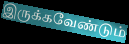
இருக்கவேண்டும்